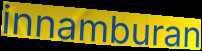
innamburan